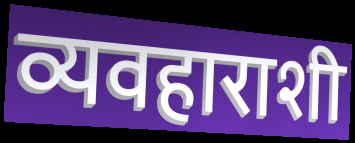
व्यवहाराशी